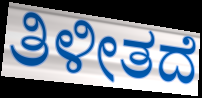
ತಿಳೀತದೆ